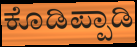
ಕೊಡಿಪ್ಪಾಡಿ